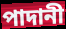
পাদানী